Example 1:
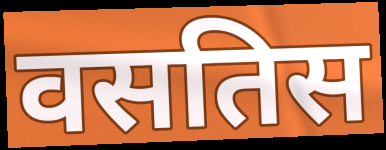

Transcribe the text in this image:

वसतिस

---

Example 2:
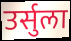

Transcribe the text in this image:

उर्सुला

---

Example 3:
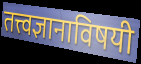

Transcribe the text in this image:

तत्त्वज्ञानाविषयी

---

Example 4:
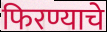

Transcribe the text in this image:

फिरण्याचे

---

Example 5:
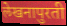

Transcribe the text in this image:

लेखनापुरती